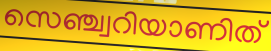
സെഞ്ച്വറിയാണിത്